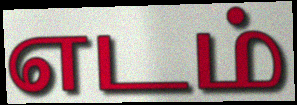
எடம்